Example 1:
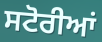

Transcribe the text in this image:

ਸਟੋਰੀਆਂ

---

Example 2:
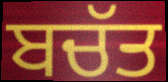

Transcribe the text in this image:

ਬਚੱਤ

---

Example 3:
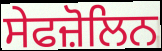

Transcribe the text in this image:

ਸੇਫਜ਼ੋਲਿਨ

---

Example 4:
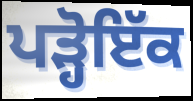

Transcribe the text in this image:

ਪੜ੍ਹੋਇੱਕ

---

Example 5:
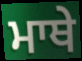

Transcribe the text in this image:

ਮਾਥੇ